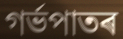
গৰ্ভপাতৰ